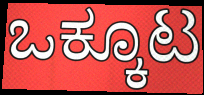
ಒಕ್ಕೂಟ